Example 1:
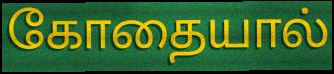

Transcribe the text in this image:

கோதையால்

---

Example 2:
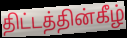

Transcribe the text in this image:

திட்டத்தின்கீழ்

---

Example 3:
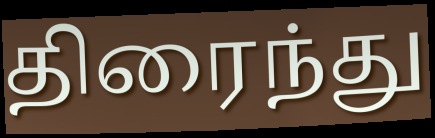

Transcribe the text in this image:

திரைந்து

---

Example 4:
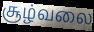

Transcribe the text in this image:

சூழ்வலை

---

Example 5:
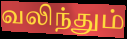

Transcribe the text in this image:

வலிந்தும்